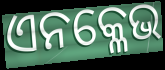
ଏନକ୍ଳେଭ